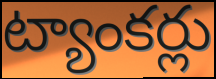
ట్యాంకర్లు